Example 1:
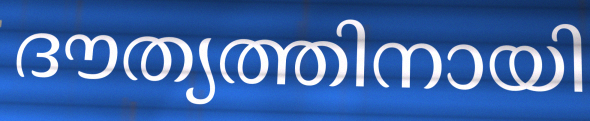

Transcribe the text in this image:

ദൗത്യത്തിനായി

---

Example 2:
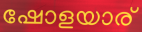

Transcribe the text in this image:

ഷോളയാര്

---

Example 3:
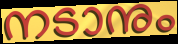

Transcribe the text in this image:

നടാനും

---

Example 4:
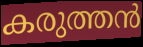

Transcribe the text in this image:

കരുത്തൻ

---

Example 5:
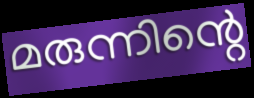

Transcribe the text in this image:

മരുന്നിന്റെ